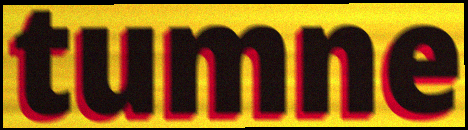
tumne